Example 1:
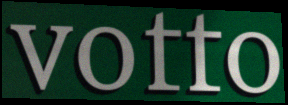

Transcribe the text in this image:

votto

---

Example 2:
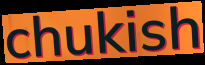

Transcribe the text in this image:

chukish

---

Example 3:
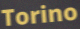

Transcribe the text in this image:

Torino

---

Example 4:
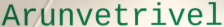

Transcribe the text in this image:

Arunvetrivel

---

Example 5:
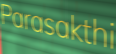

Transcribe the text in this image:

Parasakthi